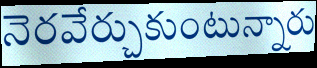
నెరవేర్చుకుంటున్నారు